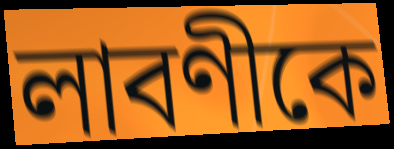
লাবণীকে